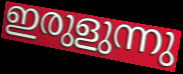
ഇരുളുന്നു